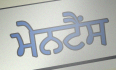
ਮੇਨਟੈਂਸ